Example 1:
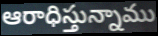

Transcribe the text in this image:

ఆరాధిస్తున్నాము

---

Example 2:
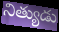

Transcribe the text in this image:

నిత్యుడు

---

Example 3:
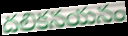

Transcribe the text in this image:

దలికనయనం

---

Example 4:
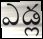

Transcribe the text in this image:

ఎడ్ల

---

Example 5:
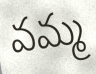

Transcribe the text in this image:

వమ్మ